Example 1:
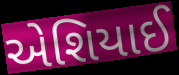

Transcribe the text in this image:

એશિયાઈ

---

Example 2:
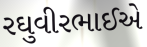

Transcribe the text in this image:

રઘુવીરભાઈએ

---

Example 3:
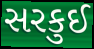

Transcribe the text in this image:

સરકુઈ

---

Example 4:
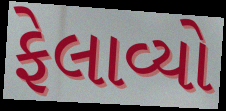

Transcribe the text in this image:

ફેલાવ્યો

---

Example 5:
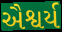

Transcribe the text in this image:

ઐશ્વર્ય